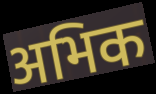
अभिक